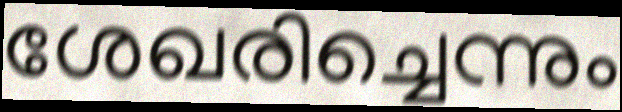
ശേഖരിച്ചെന്നും